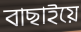
বাছাইয়ে